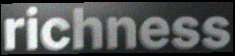
richness